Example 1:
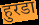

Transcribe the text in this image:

हुरडा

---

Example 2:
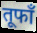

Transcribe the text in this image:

तूफाँ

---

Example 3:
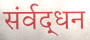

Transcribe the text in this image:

संर्वद्धन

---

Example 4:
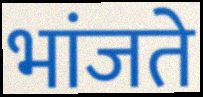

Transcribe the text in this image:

भांजते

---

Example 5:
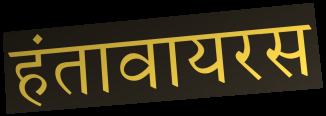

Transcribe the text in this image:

हंतावायरस